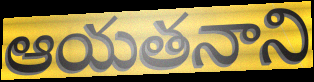
ఆయతనాని